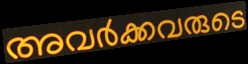
അവർക്കവരുടെ